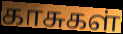
காசுகள்